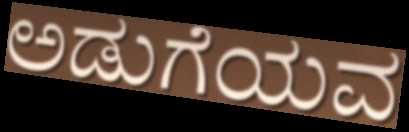
ಅಡುಗೆಯವ